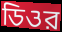
ডিওর